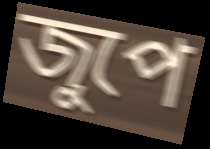
জুপে